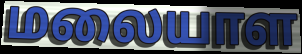
மலையாள